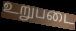
உறுபடை